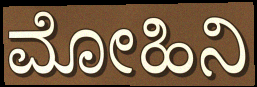
ಮೋಹಿನಿ